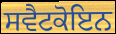
ਸਵੈਟਕੋਇਨ